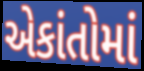
એકાંતોમાં